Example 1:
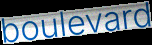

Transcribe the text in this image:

boulevard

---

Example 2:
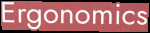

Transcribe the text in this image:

Ergonomics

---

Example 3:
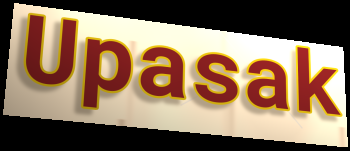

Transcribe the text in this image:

Upasak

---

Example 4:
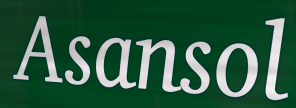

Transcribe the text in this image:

Asansol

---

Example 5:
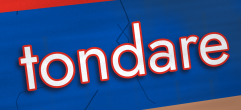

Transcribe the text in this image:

tondare